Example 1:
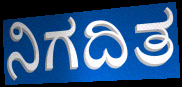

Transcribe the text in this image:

ನಿಗದಿತ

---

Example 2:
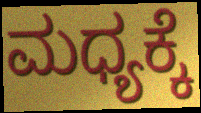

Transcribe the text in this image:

ಮಧ್ಯಕ್ಕೆ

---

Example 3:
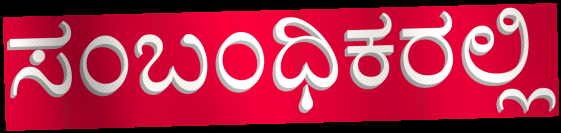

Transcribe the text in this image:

ಸಂಬಂಧಿಕರಲ್ಲಿ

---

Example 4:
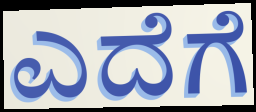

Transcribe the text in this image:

ಎದೆಗೆ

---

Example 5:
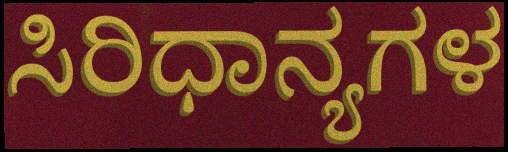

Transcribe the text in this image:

ಸಿರಿಧಾನ್ಯಗಳ